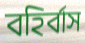
বহির্বাস